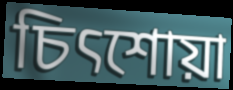
চিৎশোয়া